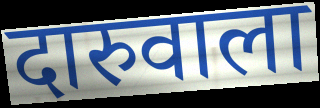
दारुवाला